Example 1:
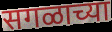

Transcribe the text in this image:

सगळाच्या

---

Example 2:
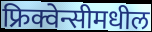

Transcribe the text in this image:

फ्रिक्वेन्सीमधील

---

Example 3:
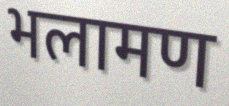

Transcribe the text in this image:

भलामण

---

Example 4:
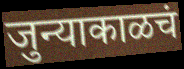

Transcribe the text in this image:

जुन्याकाळचं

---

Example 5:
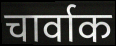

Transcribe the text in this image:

चार्वाक